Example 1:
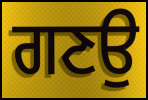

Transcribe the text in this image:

ਗਣਉ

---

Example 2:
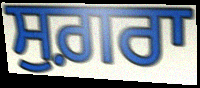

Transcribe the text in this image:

ਸੁਗ਼ਰਾ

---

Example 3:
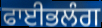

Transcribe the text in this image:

ਫਾਈਭਲੰਗ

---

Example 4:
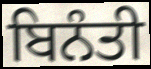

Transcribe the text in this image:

ਬਿਨੰਤੀ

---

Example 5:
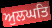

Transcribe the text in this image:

ਅੁਲਘਤਿ